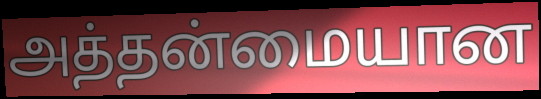
அத்தன்மையான